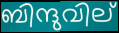
ബിന്ദുവില്